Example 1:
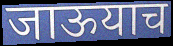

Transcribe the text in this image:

जाऊयाच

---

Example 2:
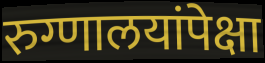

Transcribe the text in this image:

रुग्णालयांपेक्षा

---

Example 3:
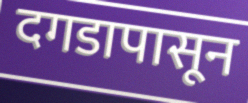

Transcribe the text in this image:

दगडापासून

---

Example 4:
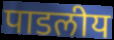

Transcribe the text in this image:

पाडलीय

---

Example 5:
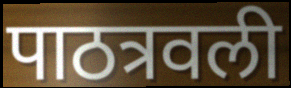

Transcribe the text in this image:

पाठत्रवली